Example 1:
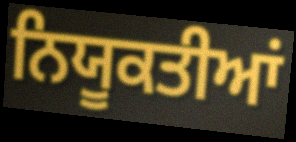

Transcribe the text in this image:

ਨਿਯੂਕਤੀਆਂ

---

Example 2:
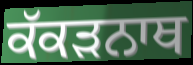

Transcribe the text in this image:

ਕੱਕੜਨਾਥ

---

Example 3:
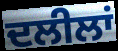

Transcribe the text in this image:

ਦਲੀਲਾਂ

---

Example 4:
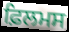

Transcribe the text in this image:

ਫ਼ਿਲਮਸ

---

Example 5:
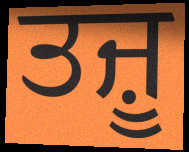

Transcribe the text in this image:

ਤਜ਼ੂ